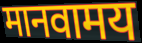
मानवामय